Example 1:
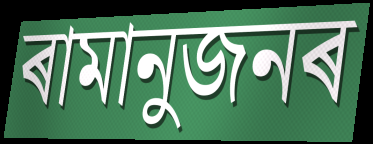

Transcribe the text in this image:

ৰামানুজনৰ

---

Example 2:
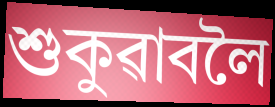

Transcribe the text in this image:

শুকুৱাবলৈ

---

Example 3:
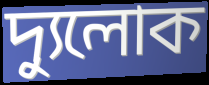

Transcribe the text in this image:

দ্যুলোক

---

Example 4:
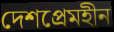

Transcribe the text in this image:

দেশপ্ৰেমহীন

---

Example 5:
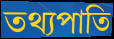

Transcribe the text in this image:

তথ্যপাতি